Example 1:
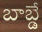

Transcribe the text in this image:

బాబ్డే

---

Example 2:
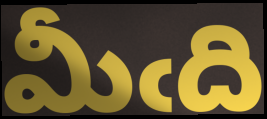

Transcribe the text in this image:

మీఁది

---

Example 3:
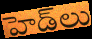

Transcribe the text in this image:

హెడ్‌లు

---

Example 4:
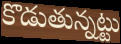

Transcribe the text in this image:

కొడుతున్నట్టు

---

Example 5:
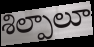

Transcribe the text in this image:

శిల్పాలూ